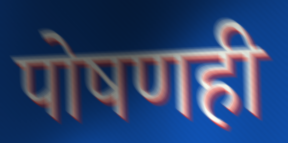
पोषणही